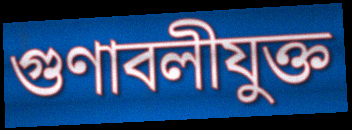
গুণাবলীযুক্ত